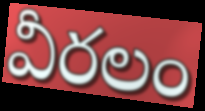
వీరలం